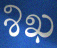
శిఖ